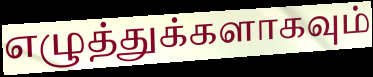
எழுத்துக்களாகவும்